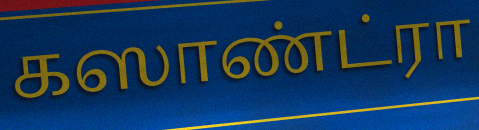
கஸாண்ட்ரா